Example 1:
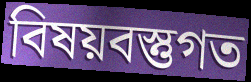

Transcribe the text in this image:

বিষয়বস্তুগত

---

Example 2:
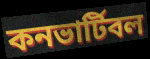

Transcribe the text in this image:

কনভার্টিবল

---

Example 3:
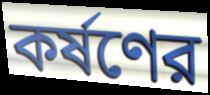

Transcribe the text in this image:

কর্ষণের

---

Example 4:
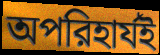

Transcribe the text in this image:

অপরিহার্যই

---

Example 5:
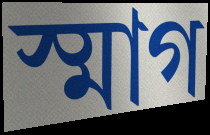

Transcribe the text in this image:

স্মাগ